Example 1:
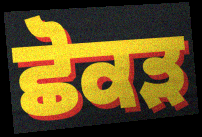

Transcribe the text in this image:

ਛੋਕੜ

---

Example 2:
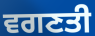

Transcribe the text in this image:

ਵਗਣਤੀ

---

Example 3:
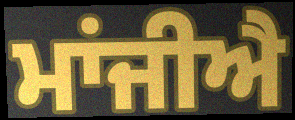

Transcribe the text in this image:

ਮਾਂਜੀਐ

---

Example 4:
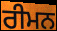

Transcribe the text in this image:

ਰੀਮਨ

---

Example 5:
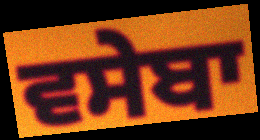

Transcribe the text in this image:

ਵਸੇਬਾ